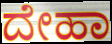
ದೇಹಾ